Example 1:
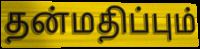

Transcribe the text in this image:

தன்மதிப்பும்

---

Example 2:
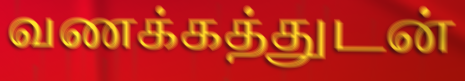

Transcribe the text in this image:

வணக்கத்துடன்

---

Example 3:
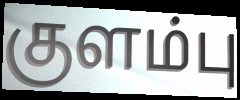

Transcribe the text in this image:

குளம்பு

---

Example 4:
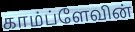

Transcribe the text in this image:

காம்ப்ளேவின்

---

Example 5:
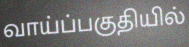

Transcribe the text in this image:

வாய்ப்பகுதியில்